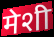
मेशी